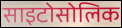
साइटोसोलिक